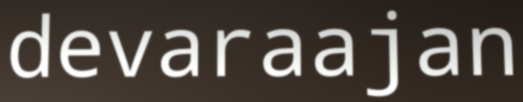
devaraajan